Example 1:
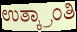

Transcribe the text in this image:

ಉತ್ಕ್ರಾಂತಿ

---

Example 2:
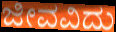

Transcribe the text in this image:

ಜೀವವಿದು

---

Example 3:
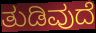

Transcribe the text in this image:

ತುಡಿವುದೆ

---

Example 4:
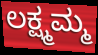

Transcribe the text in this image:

ಲಕ್ಷ್ಮಮ್ಮ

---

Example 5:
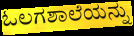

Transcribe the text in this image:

ಓಲಗಶಾಲೆಯನ್ನು